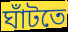
ঘাঁটতে